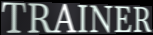
TRAINER